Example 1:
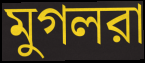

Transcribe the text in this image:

মুগলরা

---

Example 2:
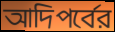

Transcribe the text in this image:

আদিপর্বের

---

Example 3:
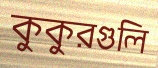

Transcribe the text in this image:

কুকুরগুলি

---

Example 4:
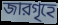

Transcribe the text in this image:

জারগৃহে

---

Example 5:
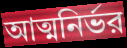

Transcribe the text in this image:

আত্মনির্ভর